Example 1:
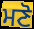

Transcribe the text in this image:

ਮਣੋ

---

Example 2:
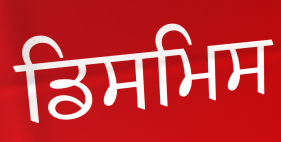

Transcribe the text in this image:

ਡਿਸਮਿਸ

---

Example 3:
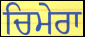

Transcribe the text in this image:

ਚਿਮੇਰਾ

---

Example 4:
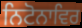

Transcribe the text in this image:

ਨਿਟੋਨਾਵਿਰ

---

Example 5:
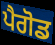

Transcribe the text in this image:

ਪੈਗੋਡ